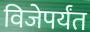
विजेपर्यंत